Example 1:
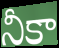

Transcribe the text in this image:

నీకా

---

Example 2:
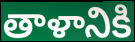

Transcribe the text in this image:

తాళానికి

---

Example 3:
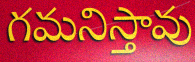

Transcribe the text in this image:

గమనిస్తావు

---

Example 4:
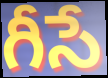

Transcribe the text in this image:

గీసే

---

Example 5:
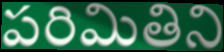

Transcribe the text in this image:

పరిమితిని